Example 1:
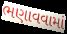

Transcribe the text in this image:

ભણાવવામાં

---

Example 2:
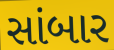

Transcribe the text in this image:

સાંબાર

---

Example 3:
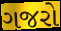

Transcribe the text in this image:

ગજરો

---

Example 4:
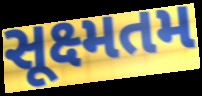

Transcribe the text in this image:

સૂક્ષ્મતમ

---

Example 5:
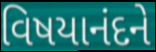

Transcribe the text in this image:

વિષયાનંદને